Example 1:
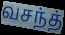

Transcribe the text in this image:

வசந்த்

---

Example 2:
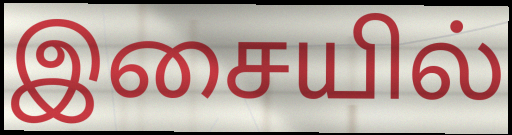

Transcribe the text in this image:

இசையில்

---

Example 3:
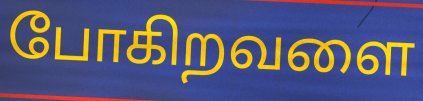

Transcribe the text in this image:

போகிறவளை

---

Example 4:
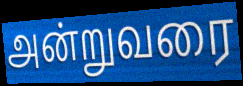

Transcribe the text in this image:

அன்றுவரை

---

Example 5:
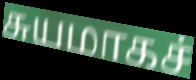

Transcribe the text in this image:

சுயமாகச்